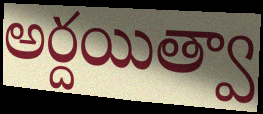
అర్దయిత్వా